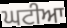
ਘਟੀਆ